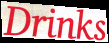
Drinks